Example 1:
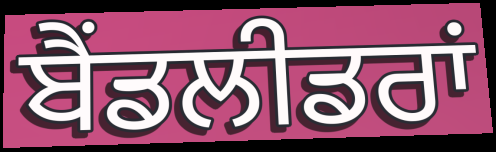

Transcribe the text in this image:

ਬੈਂਡਲੀਡਰਾਂ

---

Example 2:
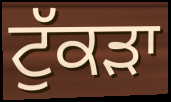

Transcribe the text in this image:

ਟੁੱਕੜਾ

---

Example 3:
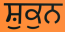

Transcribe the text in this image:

ਸ਼ੁਕੁਨ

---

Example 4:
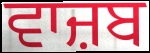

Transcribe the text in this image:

ਵਾਜ਼ਬ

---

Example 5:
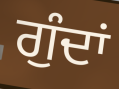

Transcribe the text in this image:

ਗੁੰਦਾਂ